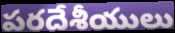
పరదేశీయులు